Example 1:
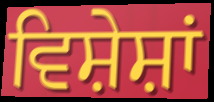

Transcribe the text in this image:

ਵਿਸ਼ੇਸ਼ਾਂ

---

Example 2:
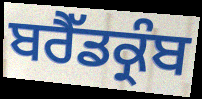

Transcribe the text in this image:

ਬਰੈੱਡਕ੍ਰੰਬ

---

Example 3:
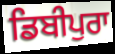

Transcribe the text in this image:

ਡਿਬੀਪੁਰਾ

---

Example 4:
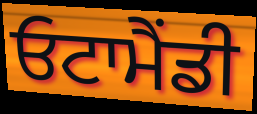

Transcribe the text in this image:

ਓਟਾਮੈਂਡੀ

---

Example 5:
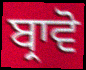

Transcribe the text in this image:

ਬ੍ਰਾਵੋ